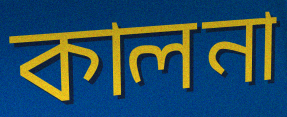
কালনা